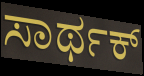
ಸಾರ್ಥಕ್